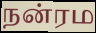
நன்ரம